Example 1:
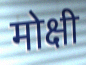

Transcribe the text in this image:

मोक्षी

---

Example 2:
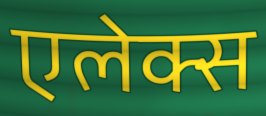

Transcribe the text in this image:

एलेक्स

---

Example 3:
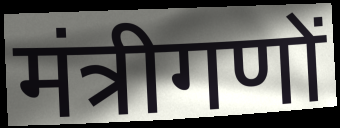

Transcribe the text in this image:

मंत्रीगणों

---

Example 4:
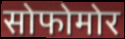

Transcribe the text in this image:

सोफोमोर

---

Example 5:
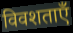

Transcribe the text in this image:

विवशताएँ